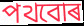
পথবোৰ